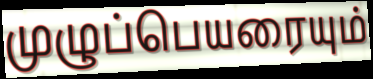
முழுப்பெயரையும்